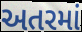
અતરમાં